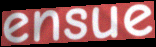
ensue